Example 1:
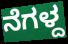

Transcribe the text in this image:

ನೆಗಳ್ದ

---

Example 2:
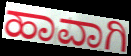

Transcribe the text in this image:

ಹಾವಾಗಿ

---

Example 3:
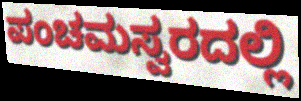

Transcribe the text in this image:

ಪಂಚಮಸ್ವರದಲ್ಲಿ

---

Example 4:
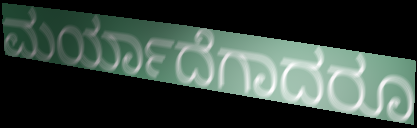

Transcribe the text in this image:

ಮರ್ಯಾದೆಗಾದರೂ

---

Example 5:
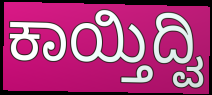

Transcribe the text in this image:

ಕಾಯ್ತಿದ್ವಿ